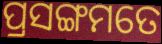
ପ୍ରସଙ୍ଗମତେ